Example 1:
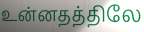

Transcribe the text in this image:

உன்னதத்திலே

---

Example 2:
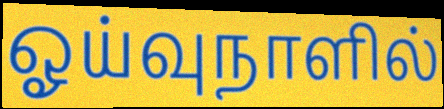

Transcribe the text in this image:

ஓய்வுநாளில்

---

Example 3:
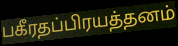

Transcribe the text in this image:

பகீரதப்பிரயத்தனம்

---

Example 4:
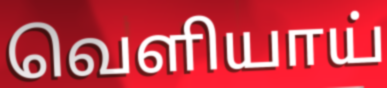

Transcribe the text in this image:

வெளியாய்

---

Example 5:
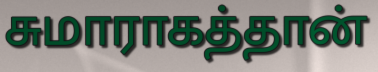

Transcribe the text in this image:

சுமாராகத்தான்